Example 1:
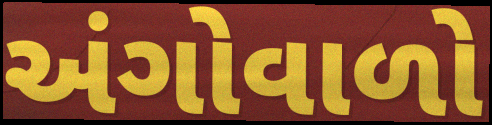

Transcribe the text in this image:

અંગોવાળો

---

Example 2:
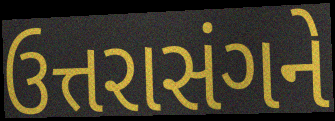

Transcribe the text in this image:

ઉત્તરાસંગને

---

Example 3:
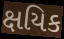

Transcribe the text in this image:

ક્ષયિક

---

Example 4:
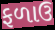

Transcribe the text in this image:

ફળાઉ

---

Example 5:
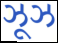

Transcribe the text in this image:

ઝૂઝ